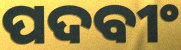
ପଦବୀଂ